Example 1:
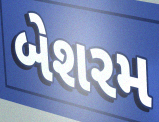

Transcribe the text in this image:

બેશરમ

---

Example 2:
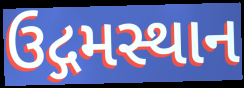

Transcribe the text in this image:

ઉદ્ગમસ્થાન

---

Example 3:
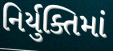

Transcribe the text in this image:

નિર્યુક્તિમાં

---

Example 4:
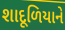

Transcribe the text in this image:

શાદૂળિયાને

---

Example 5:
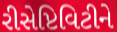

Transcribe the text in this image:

રીસેપ્ટિવિટીને